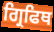
ਗ੍ਰਿਫਿਥ